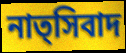
নাত্সিবাদ